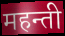
महन्ती